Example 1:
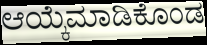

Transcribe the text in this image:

ಆಯ್ಕೆಮಾಡಿಕೊಂಡ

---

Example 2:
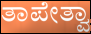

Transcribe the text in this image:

ತಾಪೇತ್ವಾ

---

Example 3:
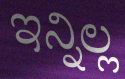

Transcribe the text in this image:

ಇನ್ನಿಲ್ಲ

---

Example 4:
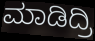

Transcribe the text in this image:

ಮಾಡಿದ್ರಿ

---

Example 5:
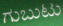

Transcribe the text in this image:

ಗುಬುಟು